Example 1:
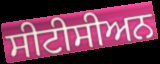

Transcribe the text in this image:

ਸੀਟੀਸੀਅਨ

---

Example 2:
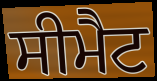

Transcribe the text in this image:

ਸੀਮੈਟ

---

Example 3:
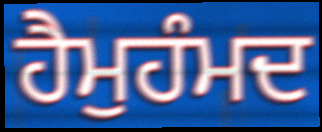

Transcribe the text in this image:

ਹੈਮੁਹੰਮਦ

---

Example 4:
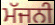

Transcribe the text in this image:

ਮੱਜਨੀ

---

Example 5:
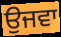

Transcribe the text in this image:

ਉਜਵਾ